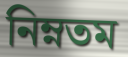
নিম্নতম